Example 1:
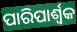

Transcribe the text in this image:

ପାରିପାର୍ଶ୍ଵକ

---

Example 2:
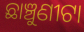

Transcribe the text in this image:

ଛାଞ୍ଚୁଣୀଟା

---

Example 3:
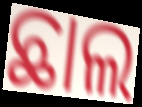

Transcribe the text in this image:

ଛାଲ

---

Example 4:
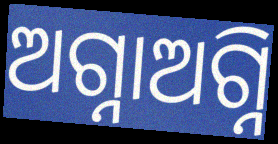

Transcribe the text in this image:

ଅଗ୍ନାଅଗ୍ନି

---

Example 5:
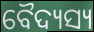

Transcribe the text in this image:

ବୈଦ୍ୟସ୍ୟ